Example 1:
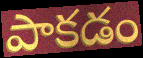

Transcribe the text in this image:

పాకడం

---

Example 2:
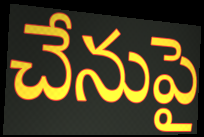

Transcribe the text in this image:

చేనుపై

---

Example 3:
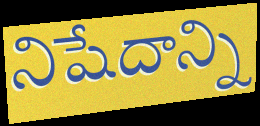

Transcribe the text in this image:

నిషేదాన్ని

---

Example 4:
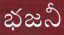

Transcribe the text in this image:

భజనీ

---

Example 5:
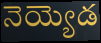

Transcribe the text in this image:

నెయ్యెడ